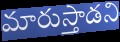
మారుస్తాడని